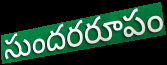
సుందరరూపం